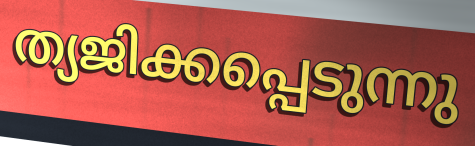
ത്യജിക്കപ്പെടുന്നു